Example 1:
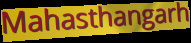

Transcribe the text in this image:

Mahasthangarh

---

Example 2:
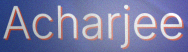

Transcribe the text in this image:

Acharjee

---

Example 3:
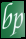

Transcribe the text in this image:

bp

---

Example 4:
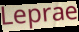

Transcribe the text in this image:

Leprae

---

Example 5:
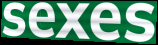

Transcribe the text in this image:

sexes